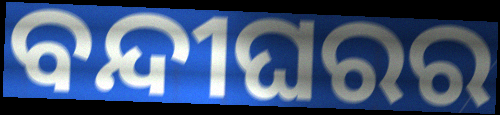
ବନ୍ଦୀଘରର